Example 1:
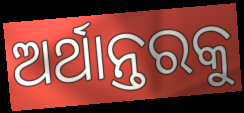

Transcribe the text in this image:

ଅର୍ଥାନ୍ତରକୁ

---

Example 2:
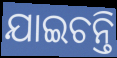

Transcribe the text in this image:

ଯାଇଚନ୍ତି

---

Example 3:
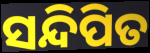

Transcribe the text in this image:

ସନ୍ଦିପିତ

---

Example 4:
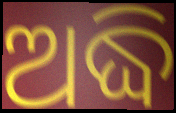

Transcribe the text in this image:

ଅଦ୍ଧି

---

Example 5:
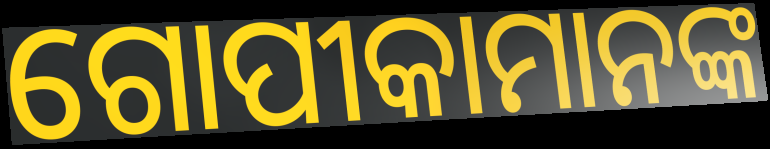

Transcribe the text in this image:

ଗୋପୀକାମାନଙ୍କ